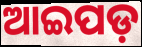
ଆଇପଡ଼